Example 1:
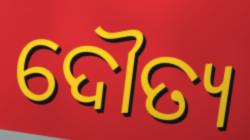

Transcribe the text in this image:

ଦୌତ୍ୟ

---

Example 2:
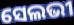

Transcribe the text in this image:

ସେଲଭୀ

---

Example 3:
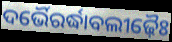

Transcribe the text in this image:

ଦର୍ଭୈରର୍ଦ୍ଧାବଲୀଢ଼ୈଃ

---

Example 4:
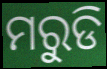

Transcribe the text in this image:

ମରୁଡି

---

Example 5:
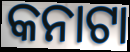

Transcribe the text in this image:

କନାଟା